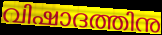
വിഷാദത്തിനു